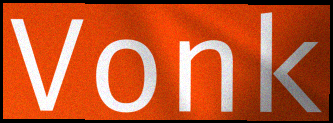
Vonk